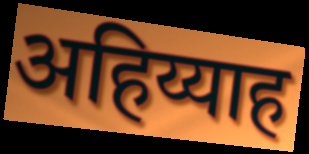
अहिय्याह